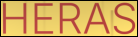
HERAS